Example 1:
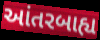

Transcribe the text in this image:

આંતરબાહ્ય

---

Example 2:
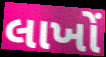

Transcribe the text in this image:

લાખોં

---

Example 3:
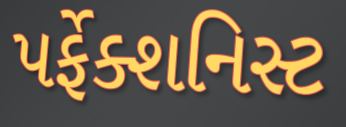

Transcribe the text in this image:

પર્ફેક્શનિસ્ટ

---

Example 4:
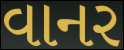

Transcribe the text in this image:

વાનર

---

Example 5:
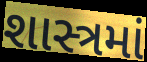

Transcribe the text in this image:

શાસ્ત્રમાં